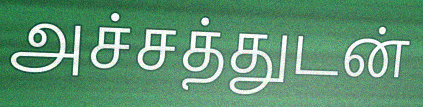
அச்சத்துடன்